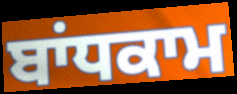
ਬਾਂਧਕਾਮ